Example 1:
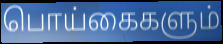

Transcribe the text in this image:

பொய்கைகளும்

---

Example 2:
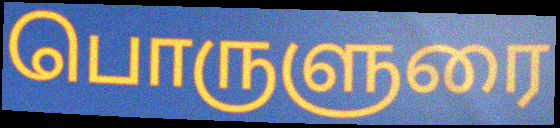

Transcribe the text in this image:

பொருளுரை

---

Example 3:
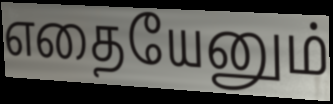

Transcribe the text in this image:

எதையேனும்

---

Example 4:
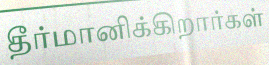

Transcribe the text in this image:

தீர்மானிக்கிறார்கள்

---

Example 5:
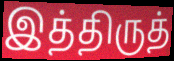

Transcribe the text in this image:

இத்திருத்